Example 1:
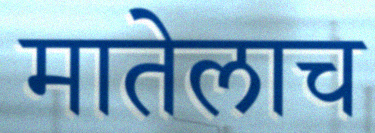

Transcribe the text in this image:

मातेलाच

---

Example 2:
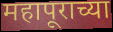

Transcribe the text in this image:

महापूराच्या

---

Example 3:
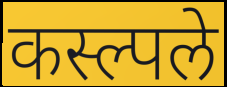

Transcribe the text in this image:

कस्ल्पले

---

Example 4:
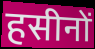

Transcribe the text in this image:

हसीनों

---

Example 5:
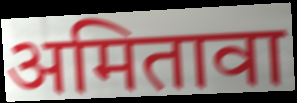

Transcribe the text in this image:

अमितावा